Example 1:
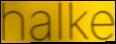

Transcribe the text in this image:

halke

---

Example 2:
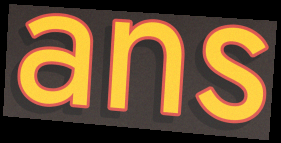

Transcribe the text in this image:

ans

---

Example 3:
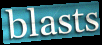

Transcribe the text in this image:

blasts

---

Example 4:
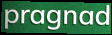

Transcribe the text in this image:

pragnad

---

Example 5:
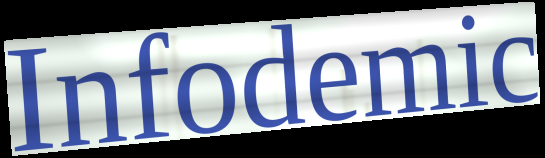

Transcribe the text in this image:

Infodemic